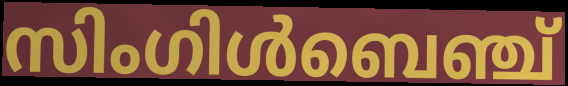
സിംഗിൾബെഞ്ച്